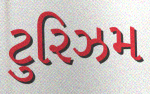
ટુરિઝમ